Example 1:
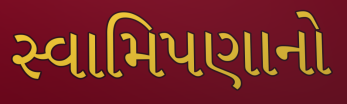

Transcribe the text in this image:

સ્વામિપણાનો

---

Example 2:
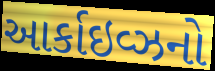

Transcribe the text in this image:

આર્કાઇવ્ઝનો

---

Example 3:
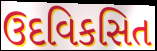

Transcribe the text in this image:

ઉદવિકસિત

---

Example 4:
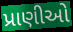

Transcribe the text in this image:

પ્રાણીઓ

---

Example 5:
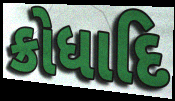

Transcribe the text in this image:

ક્રોધાદિ